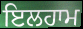
ਇਲਹਾਮ